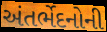
અંતર્ભેદનોની